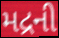
મદ્રની